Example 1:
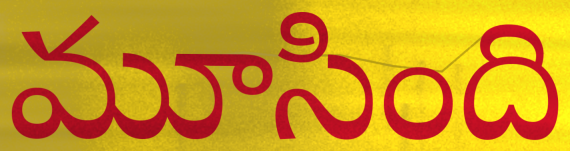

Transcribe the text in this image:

మూసింది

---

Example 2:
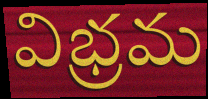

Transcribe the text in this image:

విభ్రమ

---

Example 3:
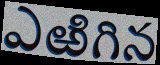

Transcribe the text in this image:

ఎఱిగిన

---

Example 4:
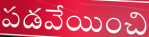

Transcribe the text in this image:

పడవేయించి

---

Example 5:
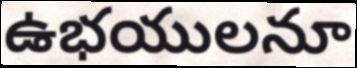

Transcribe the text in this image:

ఉభయులనూ